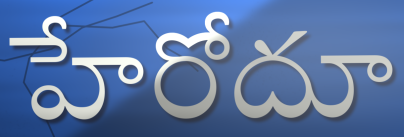
హేరోదూ